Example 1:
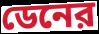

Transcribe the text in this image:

ডেনের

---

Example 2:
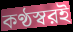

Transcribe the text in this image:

কণ্ঠস্বরই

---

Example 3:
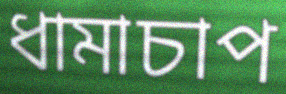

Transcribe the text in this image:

ধামাচাপ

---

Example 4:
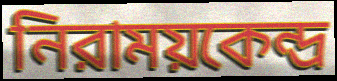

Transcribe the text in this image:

নিরাময়কেন্দ্র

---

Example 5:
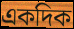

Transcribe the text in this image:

একদিক